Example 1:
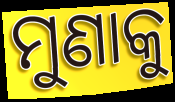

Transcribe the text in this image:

ମୁଣାକୁ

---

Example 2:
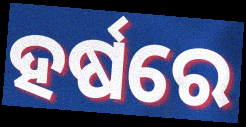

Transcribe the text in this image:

ହର୍ଷରେ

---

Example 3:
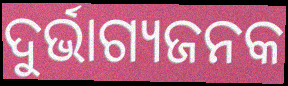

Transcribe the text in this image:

ଦୁର୍ଭାଗ୍ୟଜନକ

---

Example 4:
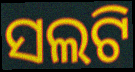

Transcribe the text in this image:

ସଲଟି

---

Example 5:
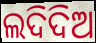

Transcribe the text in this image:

ଲଦିଦିଅ